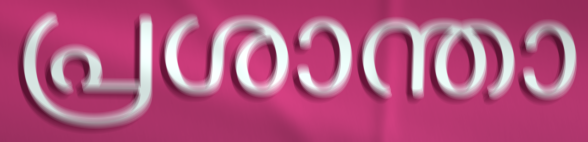
പ്രശാന്താ